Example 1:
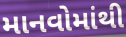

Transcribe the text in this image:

માનવોમાંથી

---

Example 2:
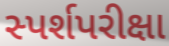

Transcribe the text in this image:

સ્પર્શપરીક્ષા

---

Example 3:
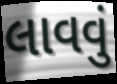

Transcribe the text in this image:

લાવવું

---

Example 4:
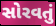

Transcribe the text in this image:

સોરવતું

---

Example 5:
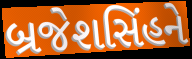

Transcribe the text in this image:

બ્રજેશસિંહને